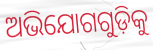
ଅଭିଯୋଗଗୁଡ଼ିକୁ